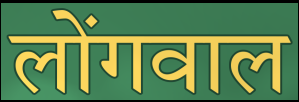
लोंगवाल